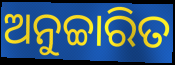
ଅନୁଚ୍ଚାରିତ